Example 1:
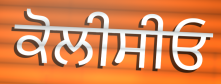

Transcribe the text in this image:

ਕੋਲੀਸੀਓ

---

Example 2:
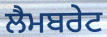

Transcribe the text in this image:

ਲੈਮਬਰੇਟ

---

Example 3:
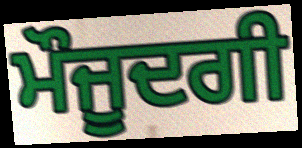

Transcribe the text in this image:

ਮੌਜੂਦਗੀ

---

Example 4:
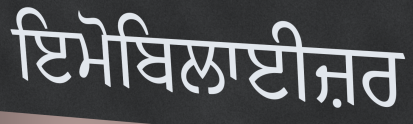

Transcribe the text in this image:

ਇਮੋਬਿਲਾਈਜ਼ਰ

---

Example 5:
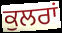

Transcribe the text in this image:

ਕੁਲਰਾਂ